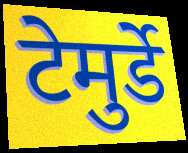
टेमुर्डे